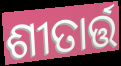
ଶୀତାର୍ତ୍ତ